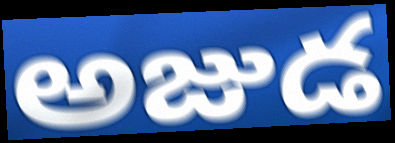
అజుడ